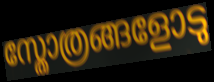
സ്തോത്രങ്ങളോടു